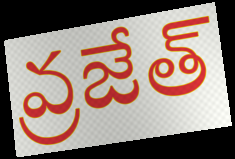
వ్రజేత్